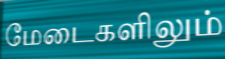
மேடைகளிலும்